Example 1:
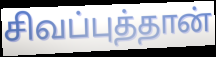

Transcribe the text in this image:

சிவப்புத்தான்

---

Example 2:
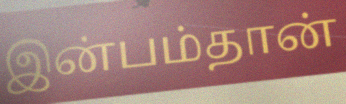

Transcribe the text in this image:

இன்பம்தான்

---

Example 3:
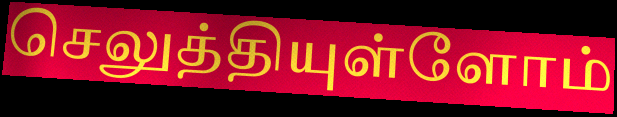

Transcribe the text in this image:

செலுத்தியுள்ளோம்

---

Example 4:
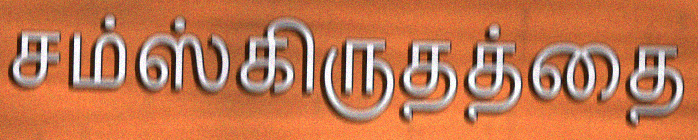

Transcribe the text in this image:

சம்ஸ்கிருதத்தை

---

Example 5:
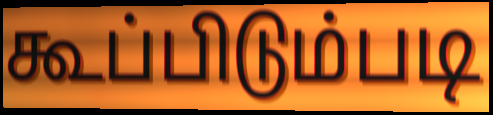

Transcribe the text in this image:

கூப்பிடும்படி